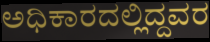
ಅಧಿಕಾರದಲ್ಲಿದ್ದವರ